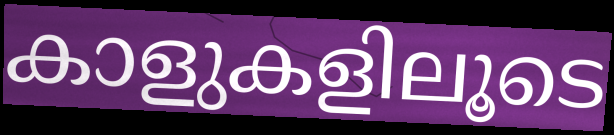
കാളുകളിലൂടെ